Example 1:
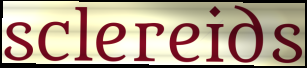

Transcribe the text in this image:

sclereids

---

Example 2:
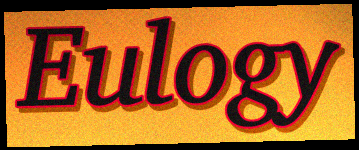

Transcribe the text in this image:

Eulogy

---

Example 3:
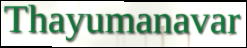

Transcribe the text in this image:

Thayumanavar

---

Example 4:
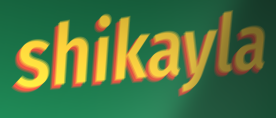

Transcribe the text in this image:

shikayla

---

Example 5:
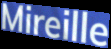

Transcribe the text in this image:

Mireille